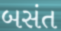
બસંત